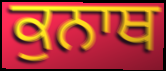
ਕੁਨਾਥ